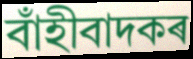
বাঁহীবাদকৰ